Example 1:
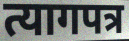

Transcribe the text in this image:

त्यागपत्र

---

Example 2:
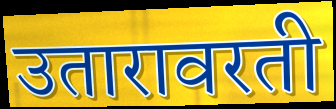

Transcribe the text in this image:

उतारावरती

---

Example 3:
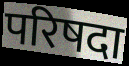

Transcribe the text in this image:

परिषदा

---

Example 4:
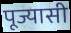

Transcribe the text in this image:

पूज्यासी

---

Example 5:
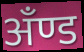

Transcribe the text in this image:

अँण्ड